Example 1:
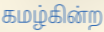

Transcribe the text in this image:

கமழ்கின்ற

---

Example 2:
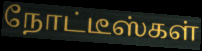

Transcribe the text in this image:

நோட்டீஸ்கள்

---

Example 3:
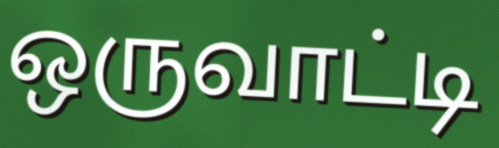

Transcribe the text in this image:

ஒருவாட்டி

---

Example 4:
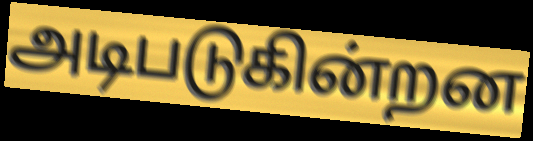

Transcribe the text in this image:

அடிபடுகின்றன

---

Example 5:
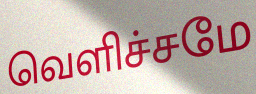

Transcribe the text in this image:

வெளிச்சமே